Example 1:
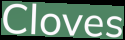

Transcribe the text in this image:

Cloves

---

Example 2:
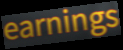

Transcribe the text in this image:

earnings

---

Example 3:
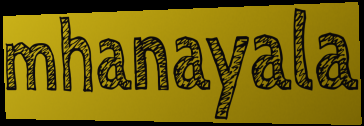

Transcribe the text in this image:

mhanayala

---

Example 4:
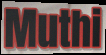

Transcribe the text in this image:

Muthi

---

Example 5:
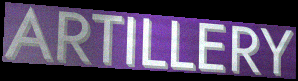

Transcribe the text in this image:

ARTILLERY